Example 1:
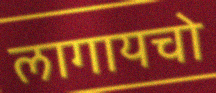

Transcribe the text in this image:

लागायचो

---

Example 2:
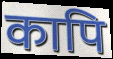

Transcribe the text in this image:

कापि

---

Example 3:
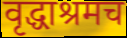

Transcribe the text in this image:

वृद्धाश्रमच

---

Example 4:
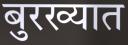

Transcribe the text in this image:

बुरख्यात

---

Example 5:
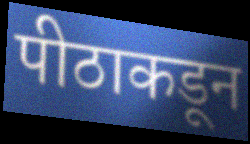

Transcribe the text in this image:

पीठाकडून